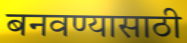
बनवण्‍यासाठी